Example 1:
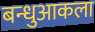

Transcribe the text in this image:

बन्धुआकला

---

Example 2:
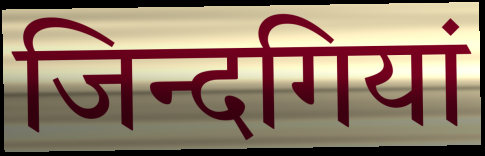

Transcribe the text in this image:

जिन्दगियां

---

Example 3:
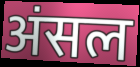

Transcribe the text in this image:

अंसल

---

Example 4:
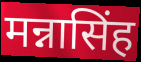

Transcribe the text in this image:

मन्नासिंह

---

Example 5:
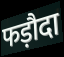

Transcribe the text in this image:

फड़ौदा